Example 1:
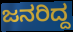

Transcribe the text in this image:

ಜನರಿದ್ದ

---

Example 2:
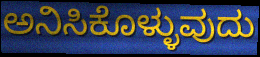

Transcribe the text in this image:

ಅನಿಸಿಕೊಳ್ಳುವುದು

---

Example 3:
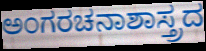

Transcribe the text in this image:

ಅಂಗರಚನಾಶಾಸ್ತ್ರದ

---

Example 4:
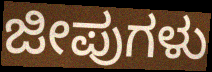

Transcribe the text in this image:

ಜೀಪುಗಳು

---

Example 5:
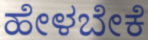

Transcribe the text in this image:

ಹೇಳಬೇಕೆ